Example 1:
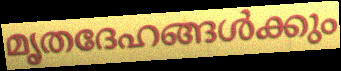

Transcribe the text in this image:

മൃതദേഹങ്ങൾക്കും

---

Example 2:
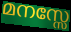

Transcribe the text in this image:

മനസ്സേ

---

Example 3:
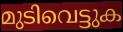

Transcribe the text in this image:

മുടിവെട്ടുക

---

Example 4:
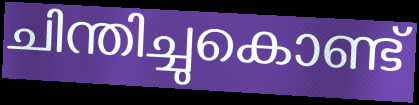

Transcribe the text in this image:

ചിന്തിച്ചുകൊണ്ട്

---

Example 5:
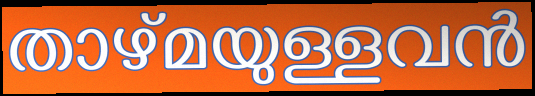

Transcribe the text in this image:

താഴ്മയുള്ളവൻ